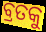
ବ୍ରତକୁ